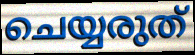
ചെയ്യരുത്